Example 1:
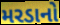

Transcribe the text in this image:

મરડાનો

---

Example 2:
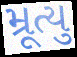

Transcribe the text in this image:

મ્રૂત્યુ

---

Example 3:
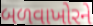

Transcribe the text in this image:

બળવાખોરને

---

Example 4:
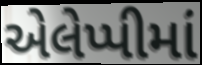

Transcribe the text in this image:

એલેપ્પીમાં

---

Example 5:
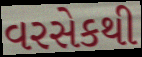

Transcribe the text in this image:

વરસેકથી